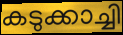
കടുക്കാച്ചി